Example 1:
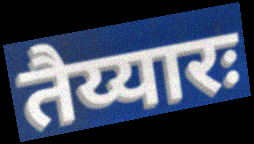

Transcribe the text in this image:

तैय्यारः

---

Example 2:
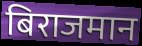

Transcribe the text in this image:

बिराजमान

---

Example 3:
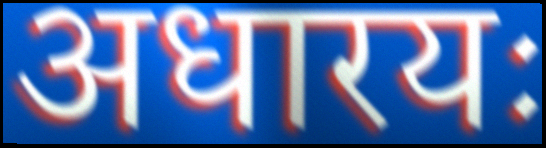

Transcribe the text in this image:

अधारयः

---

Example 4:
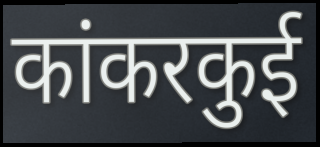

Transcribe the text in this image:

कांकरकुई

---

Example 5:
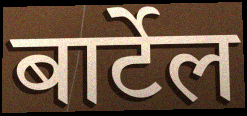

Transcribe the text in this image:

बार्टेल